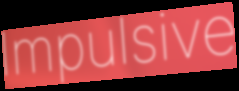
Impulsive